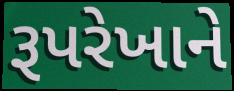
રૂપરેખાને